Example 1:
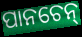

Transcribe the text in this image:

ପାନଚେନ୍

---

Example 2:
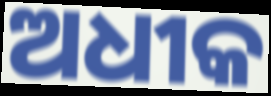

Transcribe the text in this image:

ଅଧୀକ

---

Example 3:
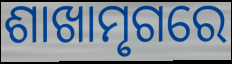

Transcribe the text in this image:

ଶାଖାମୃଗରେ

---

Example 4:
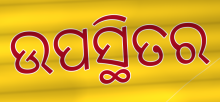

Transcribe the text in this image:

ଉପସ୍ଥିତର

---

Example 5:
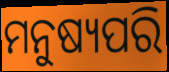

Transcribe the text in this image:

ମନୁଷ୍ୟପରି